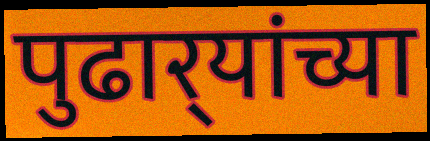
पुढार्‍यांच्या